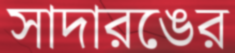
সাদারঙের